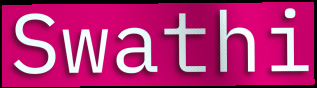
Swathi